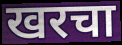
खरचा